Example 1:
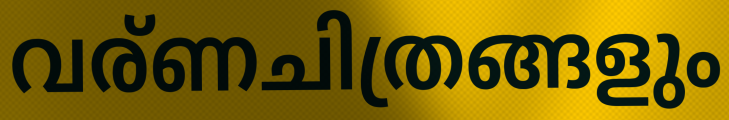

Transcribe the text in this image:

വര്ണചിത്രങ്ങളും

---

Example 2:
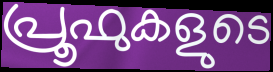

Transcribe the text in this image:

പ്രൂഫുകളുടെ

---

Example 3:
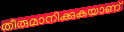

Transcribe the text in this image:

തീരുമാനിക്കുകയാണ്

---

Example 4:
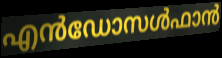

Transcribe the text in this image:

എൻഡോസൾഫാൻ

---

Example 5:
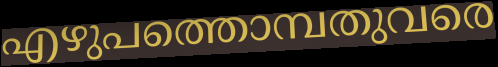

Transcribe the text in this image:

എഴുപത്തൊമ്പതുവരെ